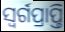
ସ୍ଵର୍ଗପ୍ରାପ୍ତି